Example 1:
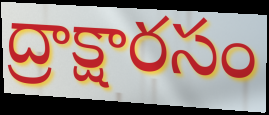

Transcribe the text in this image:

ద్రాక్షారసం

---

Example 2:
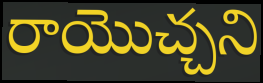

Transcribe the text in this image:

రాయొచ్చని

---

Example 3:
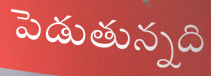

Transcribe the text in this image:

పెడుతున్నది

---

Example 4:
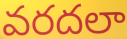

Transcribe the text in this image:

వరదలా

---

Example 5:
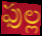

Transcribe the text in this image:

ఫుల్ల